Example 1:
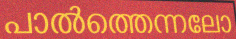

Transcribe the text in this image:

പാൽത്തെന്നലോ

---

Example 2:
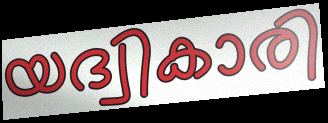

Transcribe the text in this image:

യദ്വികാരി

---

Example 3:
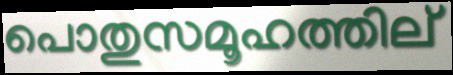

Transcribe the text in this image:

പൊതുസമൂഹത്തില്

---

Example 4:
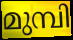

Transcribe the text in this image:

മുമ്പി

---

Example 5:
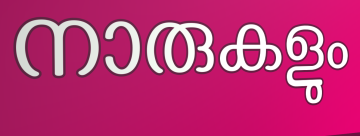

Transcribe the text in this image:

നാരുകളും